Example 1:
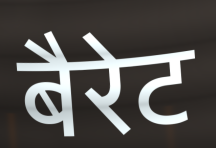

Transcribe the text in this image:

बैरेट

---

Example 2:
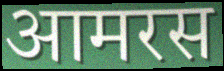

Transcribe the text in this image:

आमरस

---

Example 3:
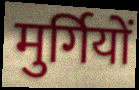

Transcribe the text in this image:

मुर्गियों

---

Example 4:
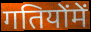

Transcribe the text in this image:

गतियोंमें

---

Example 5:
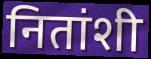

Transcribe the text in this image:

नितांशी